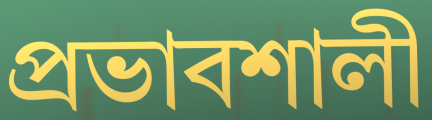
প্রভাবশালী